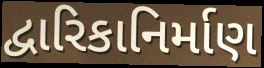
દ્વારિકાનિર્માણ